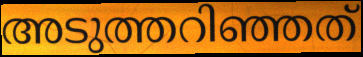
അടുത്തറിഞ്ഞത്